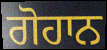
ਗੋਹਾਨ